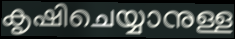
കൃഷിചെയ്യാനുള്ള